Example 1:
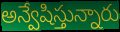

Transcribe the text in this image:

అన్వేషిస్తున్నారు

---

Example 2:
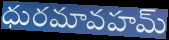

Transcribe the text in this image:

ధురమావహమ్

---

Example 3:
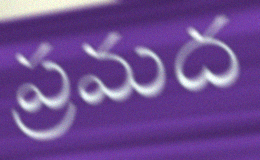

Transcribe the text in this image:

ప్రమద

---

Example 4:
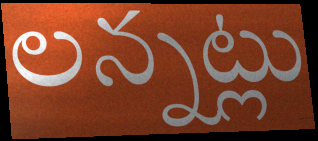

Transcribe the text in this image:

లన్నట్లు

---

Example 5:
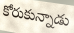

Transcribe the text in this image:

కోరుకున్నాడు